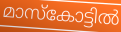
മാസ്കോട്ടിൽ